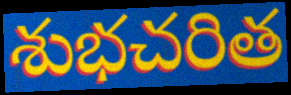
శుభచరిత